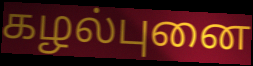
கழல்புனை